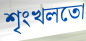
শৃংখলতো